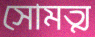
সোমত্ম